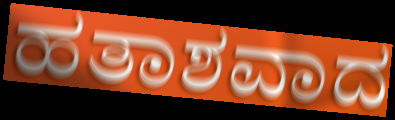
ಹತಾಶವಾದ